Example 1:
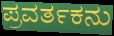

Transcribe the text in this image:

ಪ್ರವರ್ತಕನು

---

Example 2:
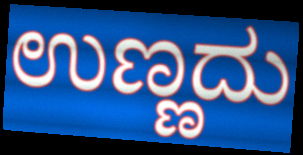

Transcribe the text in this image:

ಉಣ್ಣದು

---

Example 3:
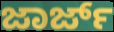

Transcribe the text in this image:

ಜಾರ್ಜ್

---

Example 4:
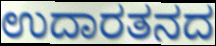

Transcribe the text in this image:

ಉದಾರತನದ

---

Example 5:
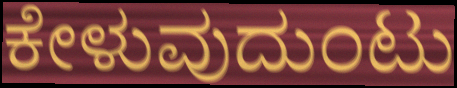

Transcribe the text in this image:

ಕೇಳುವುದುಂಟು